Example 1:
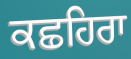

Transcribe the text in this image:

ਕਛਹਿਰਾ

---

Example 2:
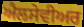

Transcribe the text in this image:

ਐਲਸੇਵੀਅਰ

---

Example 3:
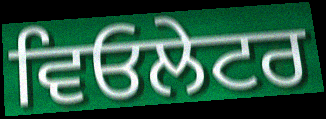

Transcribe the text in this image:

ਵਿਓਲੇਟਰ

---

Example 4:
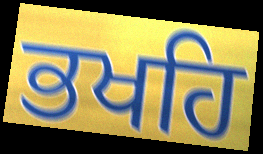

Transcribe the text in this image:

ਭਖਹਿ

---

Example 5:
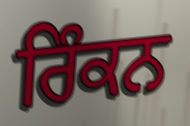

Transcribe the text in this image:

ਰਿੰਕਨ